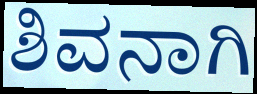
ಶಿವನಾಗಿ